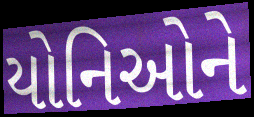
યોનિઓને